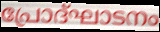
പ്രോദ്ഘാടനം